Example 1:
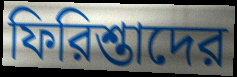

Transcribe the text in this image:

ফিরিশ্তাদের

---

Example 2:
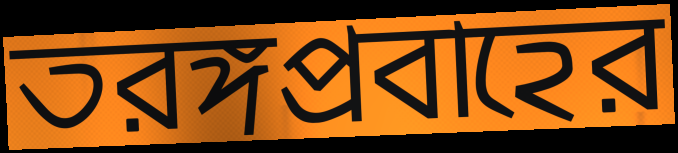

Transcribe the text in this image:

তরঙ্গপ্রবাহের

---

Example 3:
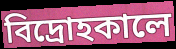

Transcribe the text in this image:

বিদ্রোহকালে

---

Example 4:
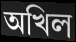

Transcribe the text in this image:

অখিল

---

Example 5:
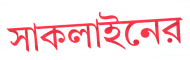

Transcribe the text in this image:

সাকলাইনের